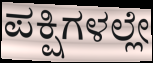
ಪಕ್ಷಿಗಳಲ್ಲೇ